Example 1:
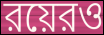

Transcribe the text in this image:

রয়েরও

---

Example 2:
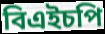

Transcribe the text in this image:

বিএইচপি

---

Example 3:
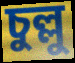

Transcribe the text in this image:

চুল্লু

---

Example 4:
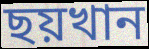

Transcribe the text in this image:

ছয়খান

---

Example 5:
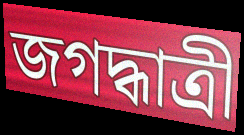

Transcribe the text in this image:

জগদ্ধাত্রী